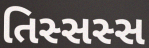
તિસ્સસ્સ